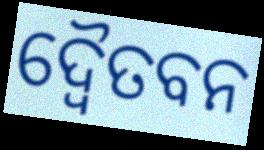
ଦ୍ୱୈତବନ